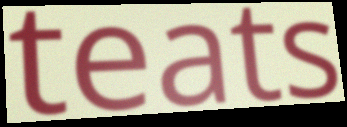
teats